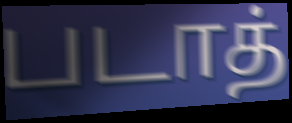
படாத்